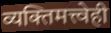
व्यक्तिमत्त्वेही